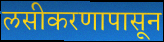
लसीकरणापासून